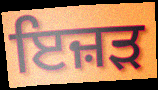
ਇਜ਼ੜ